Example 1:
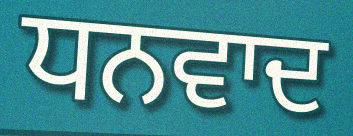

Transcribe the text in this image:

ਧਨਵਾਦ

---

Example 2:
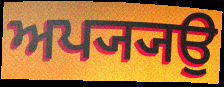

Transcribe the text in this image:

ਅਪ੍ਯ੍ਯਉ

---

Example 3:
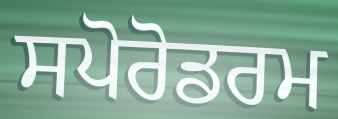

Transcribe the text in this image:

ਸਪੋਰੋਡਰਮ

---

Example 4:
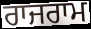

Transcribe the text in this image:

ਰਾਜਰਾਮ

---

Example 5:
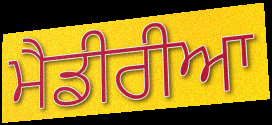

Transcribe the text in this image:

ਮੈਡੀਰੀਆ